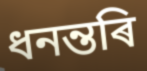
ধনন্তৰি